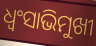
ଧ୍ଵଂସାଭିମୁଖୀ